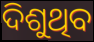
ଦିଶୁଥିବ